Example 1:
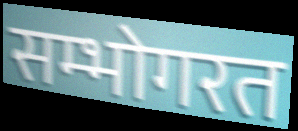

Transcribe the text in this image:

सम्भोगरत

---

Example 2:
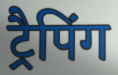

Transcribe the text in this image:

ट्रैपिंग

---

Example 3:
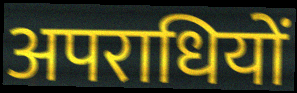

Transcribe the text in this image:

अपराधियों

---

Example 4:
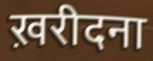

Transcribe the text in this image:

ख़रीदना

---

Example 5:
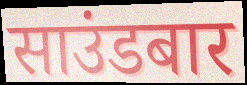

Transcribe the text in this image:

साउंडबार